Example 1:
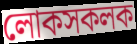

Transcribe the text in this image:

লোকসকলক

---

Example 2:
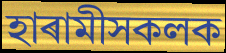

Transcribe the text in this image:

হাৰামীসকলক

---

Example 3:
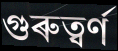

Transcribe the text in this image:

গুৰুত্ৱৰ্ণ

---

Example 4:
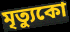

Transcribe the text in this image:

মৃত্যুকো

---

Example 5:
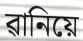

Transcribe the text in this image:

ৱানিয়ে